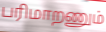
பரிமாறணும்